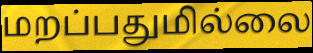
மறப்பதுமில்லை